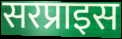
सरप्राइस